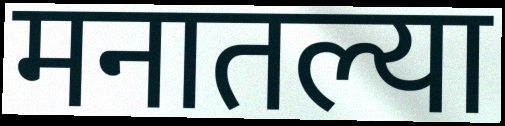
मनातल्या